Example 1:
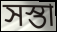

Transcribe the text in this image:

সস্তা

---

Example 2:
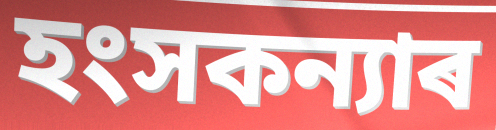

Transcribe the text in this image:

হংসকন্যাৰ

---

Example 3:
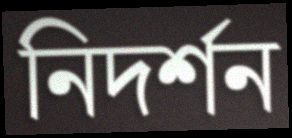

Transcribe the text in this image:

নিদৰ্শন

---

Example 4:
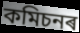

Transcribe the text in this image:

কমিচনৰ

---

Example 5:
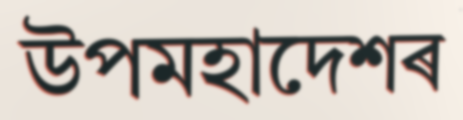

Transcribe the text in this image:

উপমহাদেশৰ